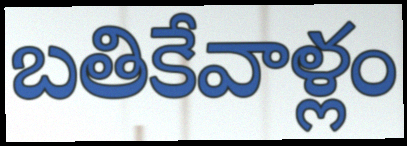
బతికేవాళ్లం